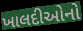
ખાલદીઓનો